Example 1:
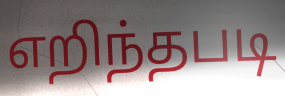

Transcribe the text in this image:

எறிந்தபடி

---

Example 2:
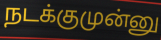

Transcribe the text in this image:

நடக்குமுன்னு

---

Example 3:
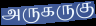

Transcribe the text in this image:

அருகருகு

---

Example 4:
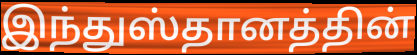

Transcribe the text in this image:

இந்துஸ்தானத்தின்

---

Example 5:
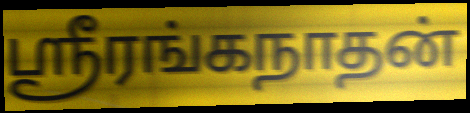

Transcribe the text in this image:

ஸ்ரீரங்கநாதன்